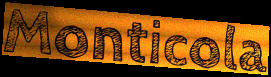
Monticola